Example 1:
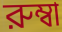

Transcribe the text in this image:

রুম্বা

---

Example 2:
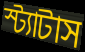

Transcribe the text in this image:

স্ট্যাটাস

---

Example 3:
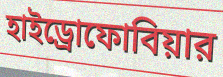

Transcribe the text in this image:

হাইড্রোফোবিয়ার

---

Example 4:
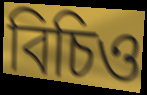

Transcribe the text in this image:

বিচিও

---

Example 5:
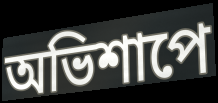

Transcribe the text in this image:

অভিশাপে